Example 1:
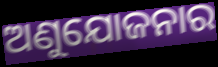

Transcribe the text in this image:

ଅଣୁଯୋଜନାର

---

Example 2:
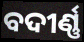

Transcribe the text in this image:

ବଦୀର୍ଣ୍ଣ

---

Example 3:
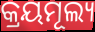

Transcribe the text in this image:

କ୍ରୟମୂଲ୍ୟ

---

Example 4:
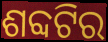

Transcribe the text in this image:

ଶବ୍ଦଟିର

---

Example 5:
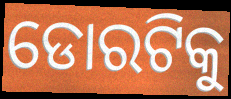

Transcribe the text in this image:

ଡୋରଟିକୁ